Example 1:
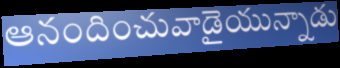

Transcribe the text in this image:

ఆనందించువాడైయున్నాడు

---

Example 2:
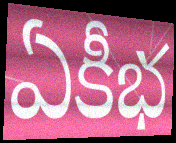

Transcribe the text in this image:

ఏకీభ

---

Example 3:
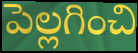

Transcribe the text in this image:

పెల్లగించి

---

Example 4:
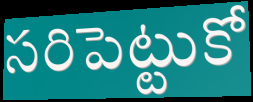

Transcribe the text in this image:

సరిపెట్టుకో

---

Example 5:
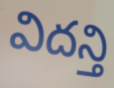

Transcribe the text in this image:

విదన్తి